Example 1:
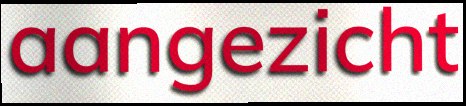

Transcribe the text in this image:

aangezicht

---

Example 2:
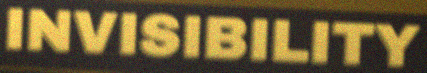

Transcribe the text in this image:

INVISIBILITY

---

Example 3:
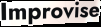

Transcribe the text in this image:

Improvise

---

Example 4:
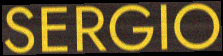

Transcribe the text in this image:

SERGIO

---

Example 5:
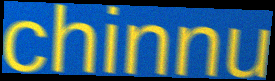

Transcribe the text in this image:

chinnu